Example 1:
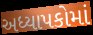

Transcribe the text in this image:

અધ્યાપકોમાં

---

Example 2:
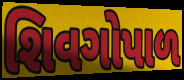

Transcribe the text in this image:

શિવગોપાળ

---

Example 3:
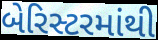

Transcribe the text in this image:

બેરિસ્ટરમાંથી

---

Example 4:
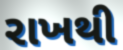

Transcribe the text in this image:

રાખથી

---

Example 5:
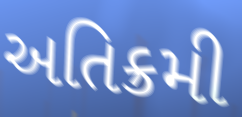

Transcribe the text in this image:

અતિક્રમી